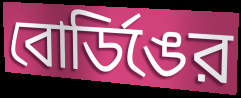
বোর্ডিঙের